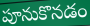
పూనుకొనడం